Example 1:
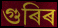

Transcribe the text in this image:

গুৰিৰ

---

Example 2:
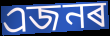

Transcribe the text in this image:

এজনৰ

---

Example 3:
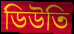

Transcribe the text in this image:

ডিউতি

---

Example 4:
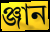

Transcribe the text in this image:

ঞ্জান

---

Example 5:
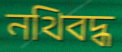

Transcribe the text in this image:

নথিবদ্ধ